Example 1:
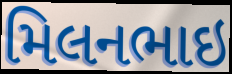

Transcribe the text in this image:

મિલનભાઇ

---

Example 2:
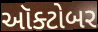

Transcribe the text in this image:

ઑક્ટોબર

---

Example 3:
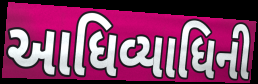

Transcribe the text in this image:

આધિવ્યાધિની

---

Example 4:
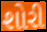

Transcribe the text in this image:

શોરી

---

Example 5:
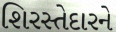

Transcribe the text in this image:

શિરસ્તેદારને